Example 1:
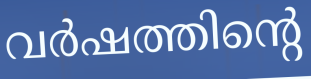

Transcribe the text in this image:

വർഷത്തിന്റെ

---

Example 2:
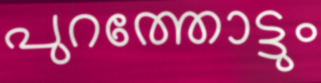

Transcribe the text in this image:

പുറത്തോട്ടും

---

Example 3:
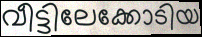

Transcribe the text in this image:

വീട്ടിലേക്കോടിയ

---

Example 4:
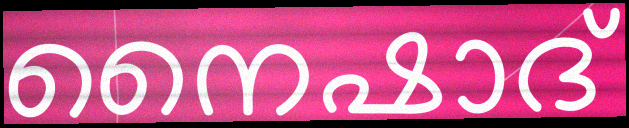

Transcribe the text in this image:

നൈഷാദ്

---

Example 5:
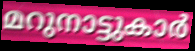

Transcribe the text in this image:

മറുനാട്ടുകാർ